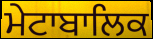
ਮੇਟਾਬਾਲਿਕ